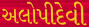
અલોપીદેવી